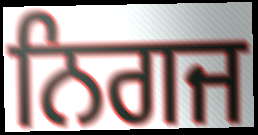
ਨਿਗਜ